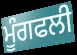
ਮੂੰਗਫਲੀ